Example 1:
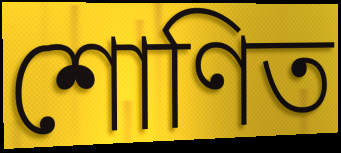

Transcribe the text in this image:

শোণিত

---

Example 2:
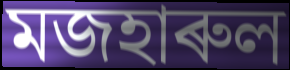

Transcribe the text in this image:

মজহাৰুল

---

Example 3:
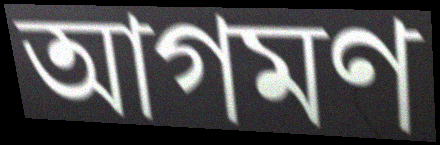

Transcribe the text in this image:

আগমণ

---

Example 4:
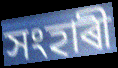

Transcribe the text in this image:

সংহাৰী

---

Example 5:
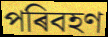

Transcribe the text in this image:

পৰিবহণ